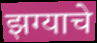
झग्याचे